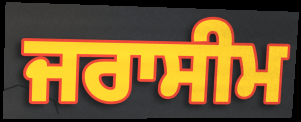
ਜਰਾਸੀਮ